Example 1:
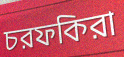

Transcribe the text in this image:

চরফকিরা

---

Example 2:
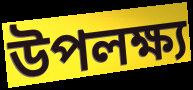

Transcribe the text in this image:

উপলক্ষ্য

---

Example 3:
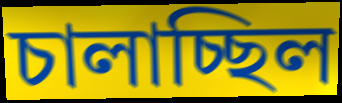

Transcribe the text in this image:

চালাচ্ছিল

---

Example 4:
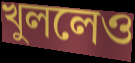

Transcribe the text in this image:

খুললেও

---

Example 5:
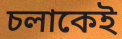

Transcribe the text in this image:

চলাকেই